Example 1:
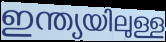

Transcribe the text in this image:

ഇന്ത്യയിലുള്ള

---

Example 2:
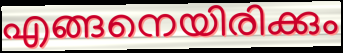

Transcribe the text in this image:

എങ്ങനെയിരിക്കും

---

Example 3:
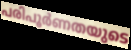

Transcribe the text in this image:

പരിപൂർണതയുടെ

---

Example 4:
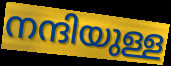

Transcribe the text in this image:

നന്ദിയുള്ള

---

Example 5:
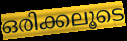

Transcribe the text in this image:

ഒരിക്കലൂടെ